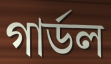
গার্ডল